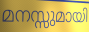
മനസ്സുമായി